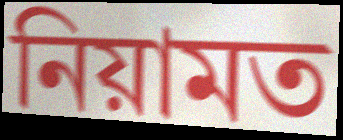
নিয়ামত